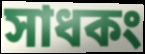
সাধকং